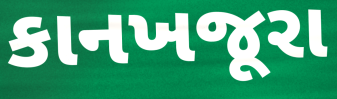
કાનખજૂરા